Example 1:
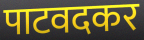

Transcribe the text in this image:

पाटवदकर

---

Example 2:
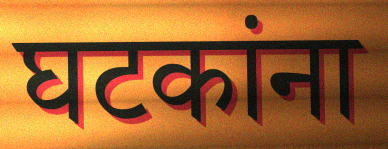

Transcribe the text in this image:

घटकांना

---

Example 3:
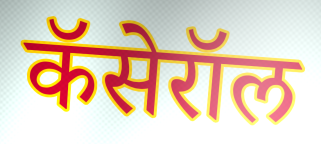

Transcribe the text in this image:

कॅसेरॉल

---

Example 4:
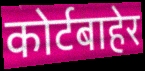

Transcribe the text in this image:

कोर्टबाहेर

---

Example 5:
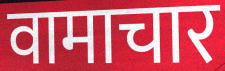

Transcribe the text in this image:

वामाचार